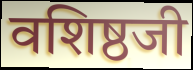
वशिष्ठजी